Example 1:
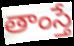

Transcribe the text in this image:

తాంస్తే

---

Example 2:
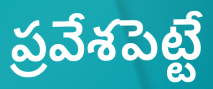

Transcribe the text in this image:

ప్రవేశపెట్టే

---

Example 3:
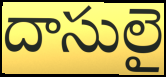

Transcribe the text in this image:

దాసులై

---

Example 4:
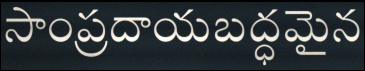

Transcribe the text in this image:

సాంప్రదాయబద్ధమైన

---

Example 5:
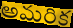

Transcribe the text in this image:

అమరిక